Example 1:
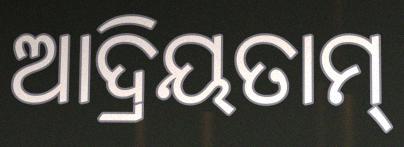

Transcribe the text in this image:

ଆଦ୍ରିୟତାମ୍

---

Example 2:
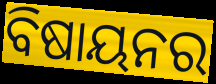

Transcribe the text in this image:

ବିଷାୟନର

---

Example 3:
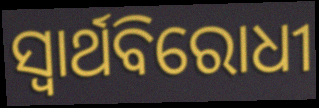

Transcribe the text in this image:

ସ୍ବାର୍ଥବିରୋଧୀ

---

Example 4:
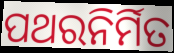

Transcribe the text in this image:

ପଥରନିର୍ମିତ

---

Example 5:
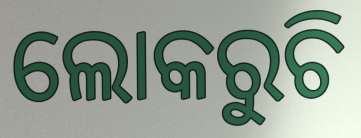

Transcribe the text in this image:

ଲୋକରୁଚି